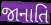
જાનાતિ